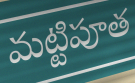
మట్టిపూత